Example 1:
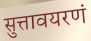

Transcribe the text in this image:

सुत्तावयरणं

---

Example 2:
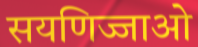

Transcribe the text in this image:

सयणिज्जाओ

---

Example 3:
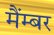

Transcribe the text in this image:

मैंम्बर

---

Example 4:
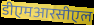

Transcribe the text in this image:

डीएमआरसीएल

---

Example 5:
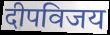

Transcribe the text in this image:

दीपविजय